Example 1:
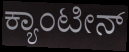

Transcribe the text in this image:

ಕ್ಯಾಂಟೀನ್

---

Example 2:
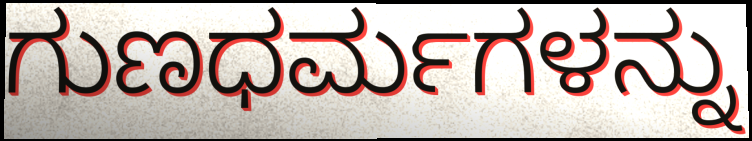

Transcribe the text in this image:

ಗುಣಧರ್ಮಗಳನ್ನು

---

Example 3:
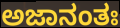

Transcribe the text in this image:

ಅಜಾನಂತಃ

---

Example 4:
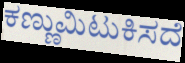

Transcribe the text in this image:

ಕಣ್ಣುಮಿಟುಕಿಸದೆ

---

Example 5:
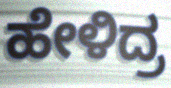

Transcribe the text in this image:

ಹೇಳಿದ್ರ